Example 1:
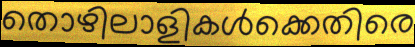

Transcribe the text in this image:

തൊഴിലാളികൾക്കെതിരെ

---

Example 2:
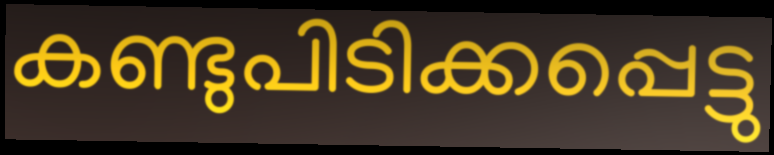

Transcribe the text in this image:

കണ്ടുപിടിക്കപ്പെട്ടു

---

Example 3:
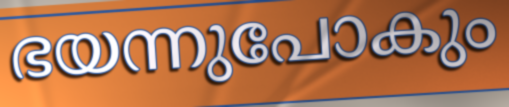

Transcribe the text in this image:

ഭയന്നുപോകും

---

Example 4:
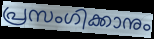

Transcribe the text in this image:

പ്രസംഗിക്കാനും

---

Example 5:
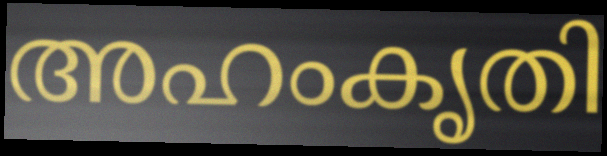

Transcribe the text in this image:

അഹംകൃതി